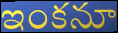
ఇంకనూ